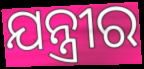
ଯନ୍ତ୍ରୀର